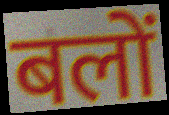
बलों